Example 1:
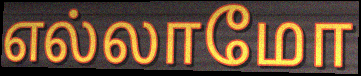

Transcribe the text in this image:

எல்லாமோ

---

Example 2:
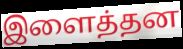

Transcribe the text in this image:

இளைத்தன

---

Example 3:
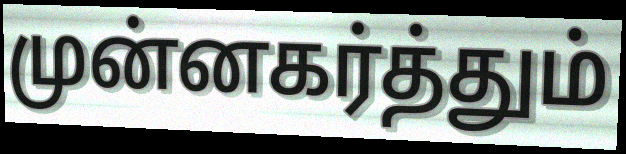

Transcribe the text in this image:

முன்னகர்த்தும்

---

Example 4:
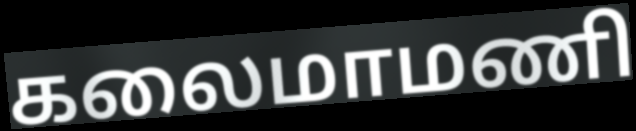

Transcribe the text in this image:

கலைமாமணி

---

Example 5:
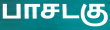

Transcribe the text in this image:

பாசடகு